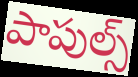
పాపుల్స్